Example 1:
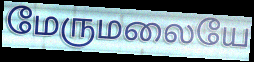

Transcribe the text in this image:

மேருமலையே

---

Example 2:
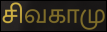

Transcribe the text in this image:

சிவகாமு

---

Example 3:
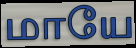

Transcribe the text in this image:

மாயே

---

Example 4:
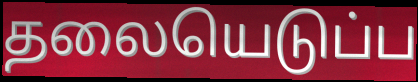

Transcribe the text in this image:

தலையெடுப்ப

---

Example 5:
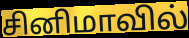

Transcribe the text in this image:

சினிமாவில்